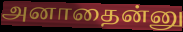
அனாதைன்னு